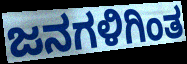
ಜನಗಳಿಗಿಂತ